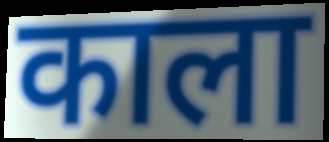
काला